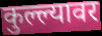
कुल्ल्यावर